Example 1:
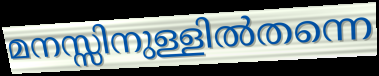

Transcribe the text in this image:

മനസ്സിനുള്ളിൽതന്നെ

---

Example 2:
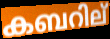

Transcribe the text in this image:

കബറില്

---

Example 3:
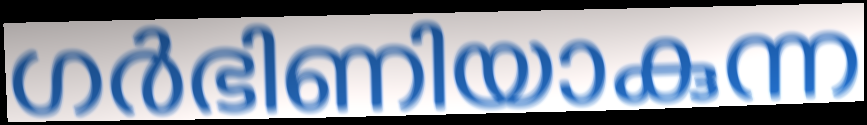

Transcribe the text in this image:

ഗർഭിണിയാകുന്ന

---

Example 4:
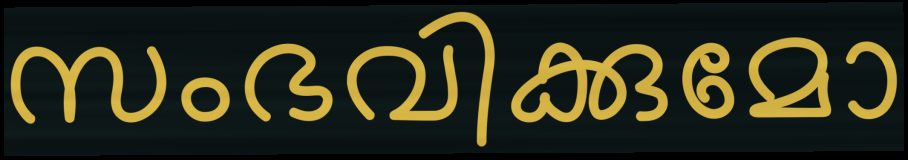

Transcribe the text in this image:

സംഭവിക്കുമോ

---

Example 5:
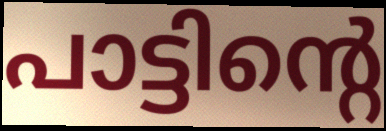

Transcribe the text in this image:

പാട്ടിന്റെ